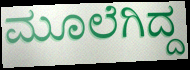
ಮೂಲೆಗಿದ್ದ